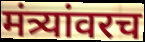
मंत्र्यांवरच